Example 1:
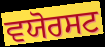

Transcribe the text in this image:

ਵਯੋਰਸਟ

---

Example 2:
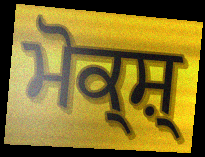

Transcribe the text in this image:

ਮੋਕ੍ਸ਼੍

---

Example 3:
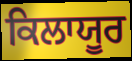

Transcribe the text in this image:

ਕਿਲਾਯੂਰ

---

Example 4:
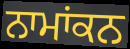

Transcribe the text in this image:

ਨਾਮਾਂਕਨ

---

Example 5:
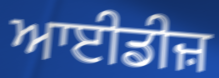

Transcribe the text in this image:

ਆਈਡੀਜ਼